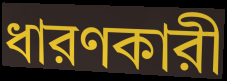
ধারণকারী